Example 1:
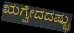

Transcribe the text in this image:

ಋಗ್ವೇದದಷ್ಟು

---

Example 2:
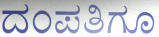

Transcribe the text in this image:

ದಂಪತಿಗೂ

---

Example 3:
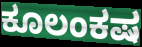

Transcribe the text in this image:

ಕೂಲಂಕಷ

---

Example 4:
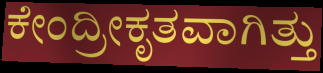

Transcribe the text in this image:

ಕೇಂದ್ರೀಕೃತವಾಗಿತ್ತು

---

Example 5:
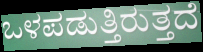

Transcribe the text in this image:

ಒಳಪಡುತ್ತಿರುತ್ತದೆ